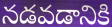
నడవడానికి